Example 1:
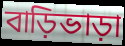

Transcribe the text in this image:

বাড়িভাড়া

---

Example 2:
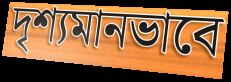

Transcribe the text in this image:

দৃশ্যমানভাবে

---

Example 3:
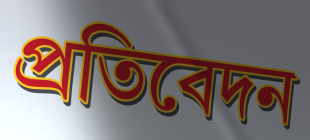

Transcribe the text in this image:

প্রতিবেদন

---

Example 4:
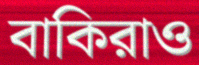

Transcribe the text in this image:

বাকিরাও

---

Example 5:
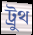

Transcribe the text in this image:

ট্রুথ